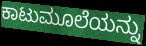
ಕಾಟುಮೂಲೆಯನ್ನು